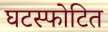
घटस्फोटित